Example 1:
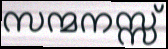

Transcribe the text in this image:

സന്മനസ്സ്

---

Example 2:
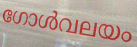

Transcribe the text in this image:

ഗോൾവലയം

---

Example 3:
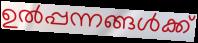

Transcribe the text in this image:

ഉൽപ്പന്നങ്ങൾക്ക്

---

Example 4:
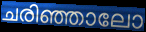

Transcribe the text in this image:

ചരിഞ്ഞാലോ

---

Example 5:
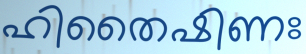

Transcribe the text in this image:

ഹിതൈഷിണഃ